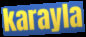
karayla